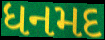
ધનમદ